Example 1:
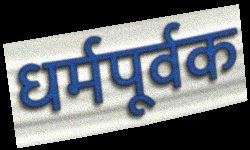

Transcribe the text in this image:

धर्मपूर्वक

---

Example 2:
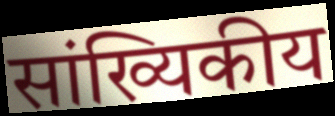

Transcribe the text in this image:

सांख्यिकीय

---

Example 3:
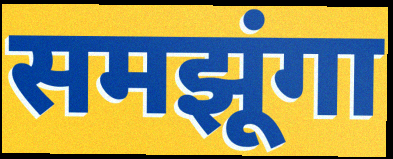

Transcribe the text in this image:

समझूंगा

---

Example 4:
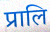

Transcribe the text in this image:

प्रालि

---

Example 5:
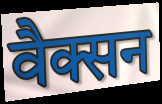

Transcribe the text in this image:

वैक्सन